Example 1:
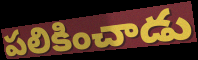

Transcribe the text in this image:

పలికించాడు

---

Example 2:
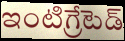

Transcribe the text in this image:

ఇంటిగ్రేటెడ్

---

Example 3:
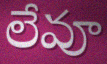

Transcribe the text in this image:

లేవూ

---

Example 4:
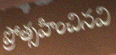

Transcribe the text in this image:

ప్రోత్సహించినవి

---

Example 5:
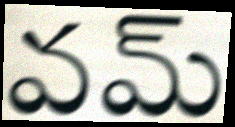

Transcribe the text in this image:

వమ్